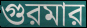
গুরমার